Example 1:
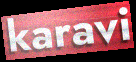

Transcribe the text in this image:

karavi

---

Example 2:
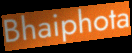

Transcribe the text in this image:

Bhaiphota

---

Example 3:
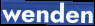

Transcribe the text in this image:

wenden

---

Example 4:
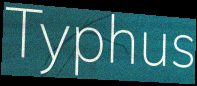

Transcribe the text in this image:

Typhus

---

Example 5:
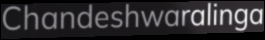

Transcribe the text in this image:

Chandeshwaralinga